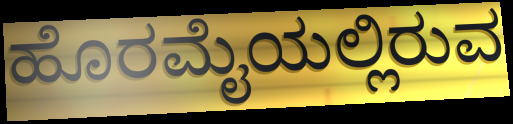
ಹೊರಮೈಯಲ್ಲಿರುವ